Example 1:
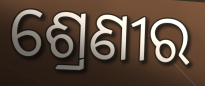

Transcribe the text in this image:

ଶ୍ରେଣୀର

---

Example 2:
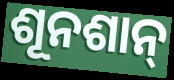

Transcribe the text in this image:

ଶୂନଶାନ୍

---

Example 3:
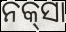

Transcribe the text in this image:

ନକ୍‍ସା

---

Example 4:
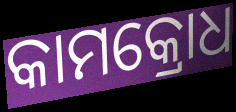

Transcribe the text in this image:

କାମକ୍ରୋଧ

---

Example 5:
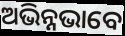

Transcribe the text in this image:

ଅଭିନ୍ନଭାବେ